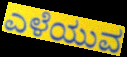
ಎಳೆಯುವ